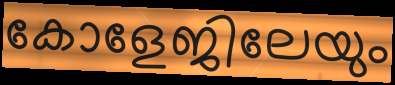
കോളേജിലേയും